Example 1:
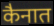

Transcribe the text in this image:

कैनात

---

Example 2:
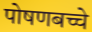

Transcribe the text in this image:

पोषणबच्चे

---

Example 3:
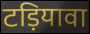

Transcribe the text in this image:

टड़ियावा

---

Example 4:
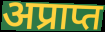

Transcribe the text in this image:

अप्राप्त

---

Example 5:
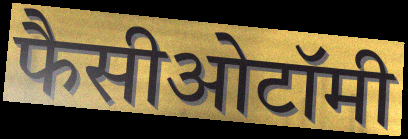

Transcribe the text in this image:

फैसीओटॉमी